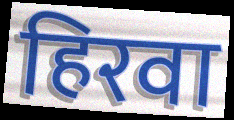
हिरवा